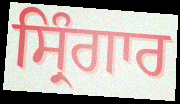
ਸ੍ਰਿੰਗਾਰ